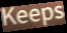
Keeps